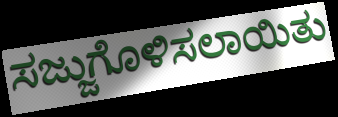
ಸಜ್ಜುಗೊಳಿಸಲಾಯಿತು